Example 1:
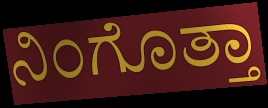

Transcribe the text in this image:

ನಿಂಗೊತ್ತಾ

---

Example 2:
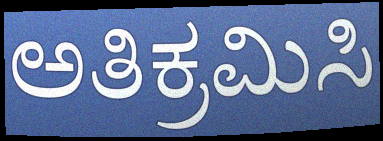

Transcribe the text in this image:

ಅತಿಕ್ರಮಿಸಿ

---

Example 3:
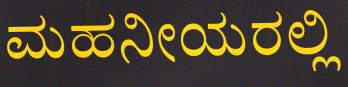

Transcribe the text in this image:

ಮಹನೀಯರಲ್ಲಿ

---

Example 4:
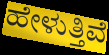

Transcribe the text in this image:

ಹೇಳುತ್ತಿವೆ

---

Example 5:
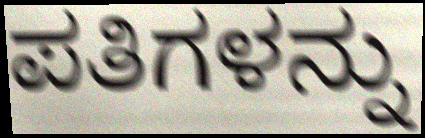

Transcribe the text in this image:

ಪತಿಗಳನ್ನು